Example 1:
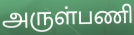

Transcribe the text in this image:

அருள்பணி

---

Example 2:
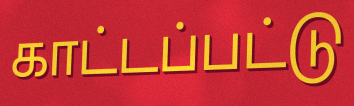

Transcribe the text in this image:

காட்டப்பட்டு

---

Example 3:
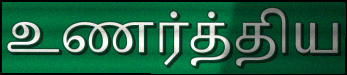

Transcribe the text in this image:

உணர்த்திய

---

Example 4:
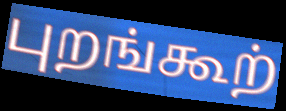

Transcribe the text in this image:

புறங்கூற்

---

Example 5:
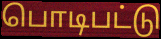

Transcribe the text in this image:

பொடிபட்டு